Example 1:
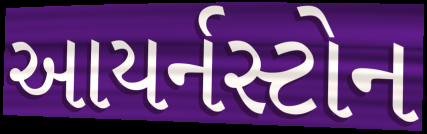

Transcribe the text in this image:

આયર્નસ્ટોન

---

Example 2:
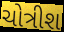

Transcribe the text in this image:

ચોત્રીશ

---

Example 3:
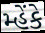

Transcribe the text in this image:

મ્હેંકે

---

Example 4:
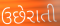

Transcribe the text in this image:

ઉછેરાતી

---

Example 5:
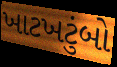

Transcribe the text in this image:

ખાટખટુંબો